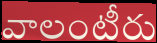
వాలంటీరు